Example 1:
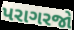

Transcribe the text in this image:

પરાગરજો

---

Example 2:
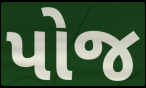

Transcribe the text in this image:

પોજ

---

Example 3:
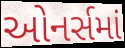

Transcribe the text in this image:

ઓનર્સમાં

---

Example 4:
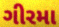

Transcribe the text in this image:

ગીરમા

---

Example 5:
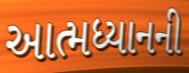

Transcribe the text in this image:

આત્મધ્યાનની